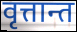
वृत्तान्त